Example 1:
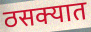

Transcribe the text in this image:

ठसक्यात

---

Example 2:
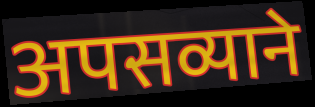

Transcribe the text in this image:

अपसव्याने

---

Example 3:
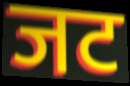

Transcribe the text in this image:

जट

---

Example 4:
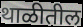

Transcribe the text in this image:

थाळीतील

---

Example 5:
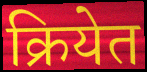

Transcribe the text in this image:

क्रियेत